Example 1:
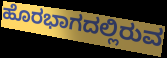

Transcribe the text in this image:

ಹೊರಭಾಗದಲ್ಲಿರುವ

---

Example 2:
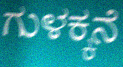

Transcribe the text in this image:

ಗುಳಕ್ಕನೆ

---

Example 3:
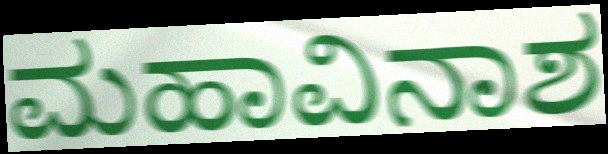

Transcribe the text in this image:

ಮಹಾವಿನಾಶ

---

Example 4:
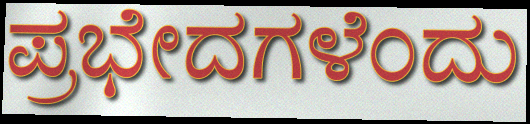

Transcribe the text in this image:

ಪ್ರಭೇದಗಳೆಂದು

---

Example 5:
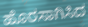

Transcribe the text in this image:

ಹೊರಸಾಗಿಸಿದ